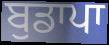
ਬੁਡਾਪਾ